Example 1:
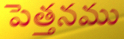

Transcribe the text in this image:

పెత్తనము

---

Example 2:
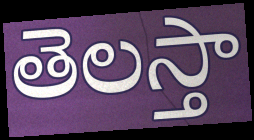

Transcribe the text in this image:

తెలస్తా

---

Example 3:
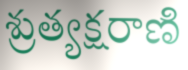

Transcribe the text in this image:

శ్రుత్యక్షరాణి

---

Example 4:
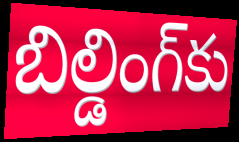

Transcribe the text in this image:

బిల్డింగ్‌కు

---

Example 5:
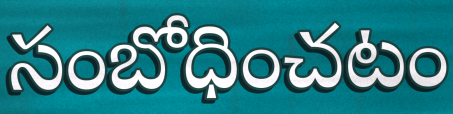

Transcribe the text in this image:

సంబోధించటం